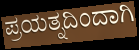
ಪ್ರಯತ್ನದಿಂದಾಗಿ